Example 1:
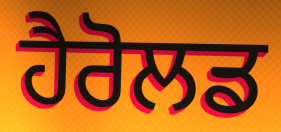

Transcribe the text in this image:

ਹੈਰੋਲਡ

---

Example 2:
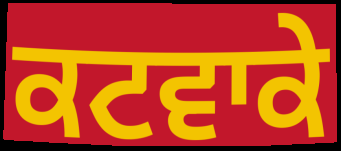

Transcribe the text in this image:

ਕਟਵਾਕੇ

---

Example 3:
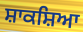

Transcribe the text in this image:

ਸ਼ਾਕਸ਼ਿਆ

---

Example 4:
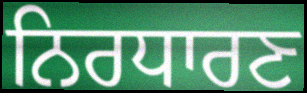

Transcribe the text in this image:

ਨਿਰਧਾਰਣ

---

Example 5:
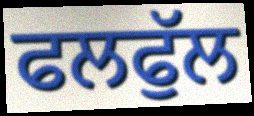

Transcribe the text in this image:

ਫਲਫੁੱਲ